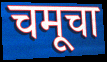
चमूचा